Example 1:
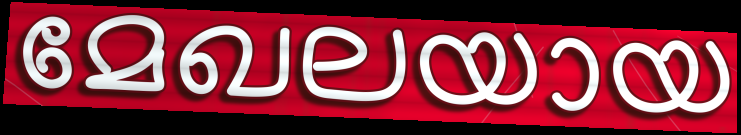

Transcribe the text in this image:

മേഖലയായ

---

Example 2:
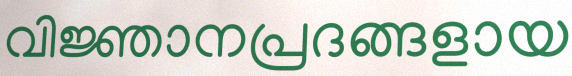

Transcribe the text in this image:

വിജ്ഞാനപ്രദങ്ങളായ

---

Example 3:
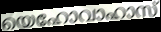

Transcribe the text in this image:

യെഹോവാഹാസ്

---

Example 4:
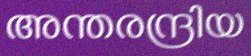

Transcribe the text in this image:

അന്തരന്ദ്രിയ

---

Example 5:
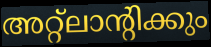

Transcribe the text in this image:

അറ്റ്ലാന്റിക്കും